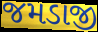
જમડાજી